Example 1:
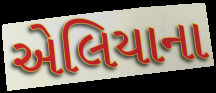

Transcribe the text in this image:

એલિયાના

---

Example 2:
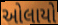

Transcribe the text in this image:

ઓલાયો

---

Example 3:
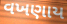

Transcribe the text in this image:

વખણાય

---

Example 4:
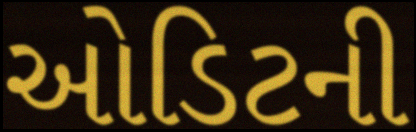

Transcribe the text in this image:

ઓડિટની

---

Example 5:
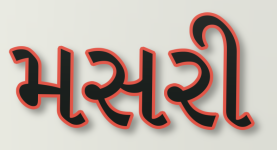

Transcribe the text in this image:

મસરી